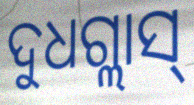
ଦୁଧଗ୍ଲାସ୍